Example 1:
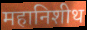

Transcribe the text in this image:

महानिशीथ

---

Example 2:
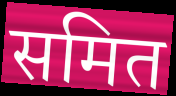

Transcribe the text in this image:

समित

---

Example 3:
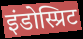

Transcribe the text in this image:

इंडोस्प्रिट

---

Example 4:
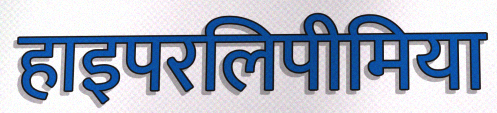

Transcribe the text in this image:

हाइपरलिपीमिया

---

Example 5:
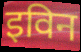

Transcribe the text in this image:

इविन